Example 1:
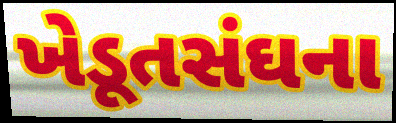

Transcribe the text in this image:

ખેડૂતસંઘના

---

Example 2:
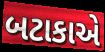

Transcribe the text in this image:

બટાકાએ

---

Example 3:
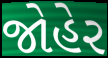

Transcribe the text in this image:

જોહેર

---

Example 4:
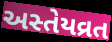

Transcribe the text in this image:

અસ્તેયવ્રત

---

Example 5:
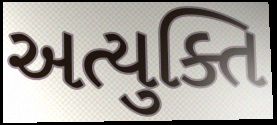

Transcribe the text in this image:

અત્યુક્તિ